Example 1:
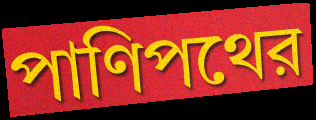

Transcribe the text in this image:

পাণিপথের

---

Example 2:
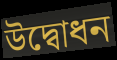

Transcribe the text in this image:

উদ্বোধন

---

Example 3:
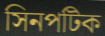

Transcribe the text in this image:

সিনপটিক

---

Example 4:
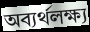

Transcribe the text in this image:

অব্যর্থলক্ষ্য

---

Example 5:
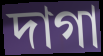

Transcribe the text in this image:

দাগা